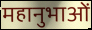
महानुभाओं